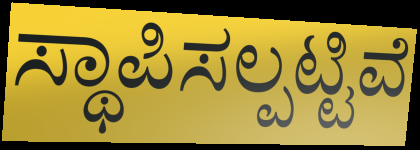
ಸ್ಥಾಪಿಸಲ್ಪಟ್ಟಿವೆ